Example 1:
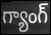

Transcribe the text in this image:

గ్యాంగ్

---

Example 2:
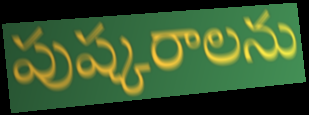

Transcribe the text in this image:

పుష్కరాలను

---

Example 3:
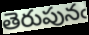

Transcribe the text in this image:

తెరుపునఁ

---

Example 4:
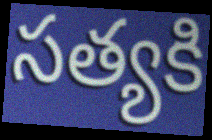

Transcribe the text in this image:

సత్యకి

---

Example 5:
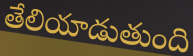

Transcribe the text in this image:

తేలియాడుతుంది